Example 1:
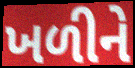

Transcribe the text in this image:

ખળીને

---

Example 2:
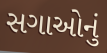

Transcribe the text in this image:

સગાઓનું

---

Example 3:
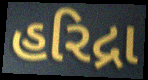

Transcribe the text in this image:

હરિદ્રા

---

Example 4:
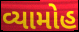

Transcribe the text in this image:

વ્યામોહ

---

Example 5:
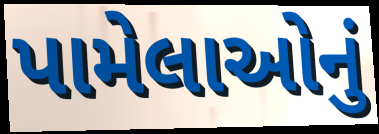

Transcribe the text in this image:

પામેલાઓનું